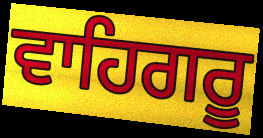
ਵਾਹਿਗਰੂ